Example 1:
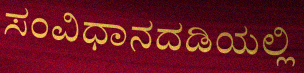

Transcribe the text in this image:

ಸಂವಿಧಾನದಡಿಯಲ್ಲಿ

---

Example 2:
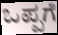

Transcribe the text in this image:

ಒಪ್ಪಗೆ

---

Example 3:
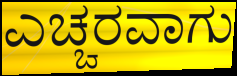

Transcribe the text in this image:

ಎಚ್ಚರವಾಗು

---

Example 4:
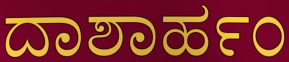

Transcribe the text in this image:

ದಾಶಾರ್ಹಂ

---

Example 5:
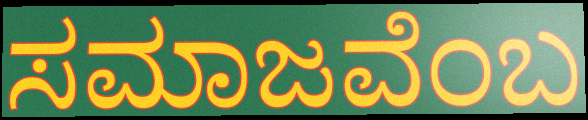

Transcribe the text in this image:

ಸಮಾಜವೆಂಬ